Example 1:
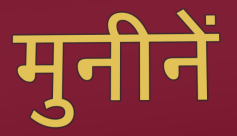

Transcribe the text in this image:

मुनीनें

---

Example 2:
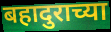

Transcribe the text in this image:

बहादुराच्या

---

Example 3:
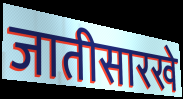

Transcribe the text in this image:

जातीसारखे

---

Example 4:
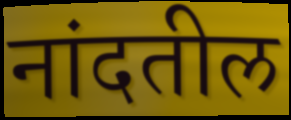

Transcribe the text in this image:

नांदतील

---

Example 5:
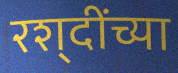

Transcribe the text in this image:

रश्दींच्या